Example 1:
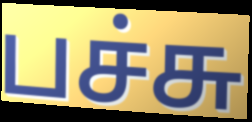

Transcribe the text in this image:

பச்சு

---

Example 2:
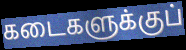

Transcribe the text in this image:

கடைகளுக்குப்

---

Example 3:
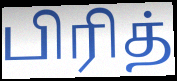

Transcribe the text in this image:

பிரித்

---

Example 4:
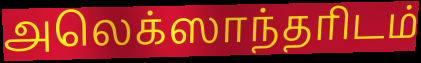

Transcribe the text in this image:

அலெக்ஸாந்தரிடம்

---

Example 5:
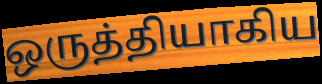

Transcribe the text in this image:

ஒருத்தியாகிய